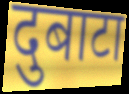
दुबाटा